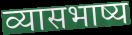
व्यासभाष्य